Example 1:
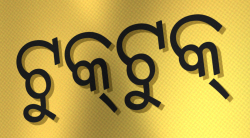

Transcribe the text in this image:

ଟୁକ୍‌ଟୁକ୍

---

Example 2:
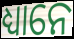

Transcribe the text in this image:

ଧ୍ୟାନେ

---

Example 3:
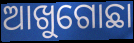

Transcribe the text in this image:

ଆଖୁଗୋଛା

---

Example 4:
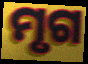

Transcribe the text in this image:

ମୃଗ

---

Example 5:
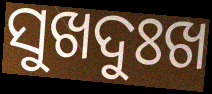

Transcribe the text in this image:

ସୁଖଦୁଃଖ